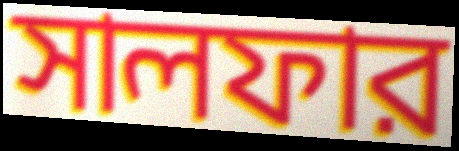
সালফার